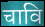
चावि